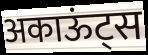
अकाऊंट्स